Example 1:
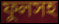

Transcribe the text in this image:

ফুলসহ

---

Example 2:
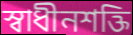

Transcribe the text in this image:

স্বাধীনশক্তি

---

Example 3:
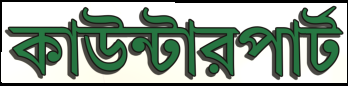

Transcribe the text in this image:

কাউন্টারপার্ট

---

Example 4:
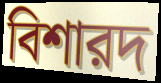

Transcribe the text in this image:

বিশারদ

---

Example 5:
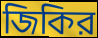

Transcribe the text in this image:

জিকির